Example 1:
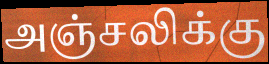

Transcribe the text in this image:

அஞ்சலிக்கு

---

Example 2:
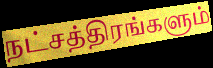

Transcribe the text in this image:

நட்சத்திரங்களும்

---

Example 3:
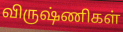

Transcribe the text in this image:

விருஷ்ணிகள்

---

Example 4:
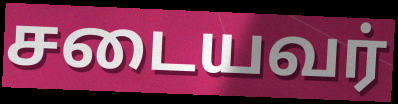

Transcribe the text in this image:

சடையவர்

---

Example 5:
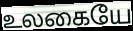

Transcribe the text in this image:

உலகையே